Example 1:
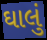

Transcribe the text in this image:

ઘાલું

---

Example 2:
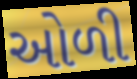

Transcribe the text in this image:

ઓળી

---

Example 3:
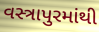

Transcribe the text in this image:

વસ્ત્રાપુરમાંથી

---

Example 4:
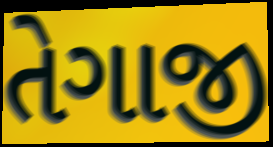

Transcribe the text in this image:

તેગાજી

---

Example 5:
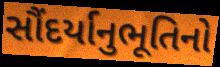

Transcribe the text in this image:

સૌંદર્યાનુભૂતિનો